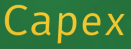
Capex